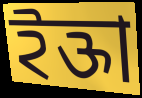
ইক্তা